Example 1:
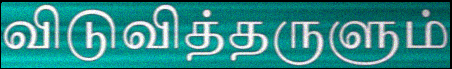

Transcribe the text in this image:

விடுவித்தருளும்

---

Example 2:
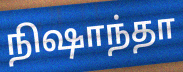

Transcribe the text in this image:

நிஷாந்தா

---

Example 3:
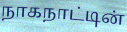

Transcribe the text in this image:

நாகநாட்டின்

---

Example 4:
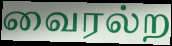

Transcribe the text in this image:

வைரல்ற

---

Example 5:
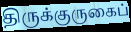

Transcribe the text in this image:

திருக்குருகைப்